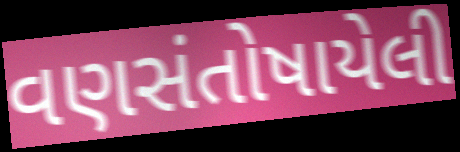
વણસંતોષાયેલી